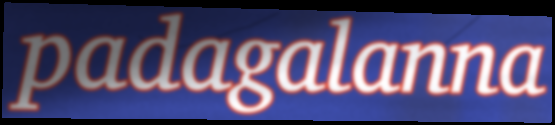
padagalanna